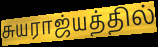
சுயராஜ்யத்தில்